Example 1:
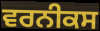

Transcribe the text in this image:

ਵਰਨੀਕਸ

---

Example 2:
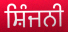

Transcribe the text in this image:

ਸ਼ਿੰਜਨੀ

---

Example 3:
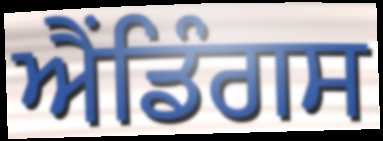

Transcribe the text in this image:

ਐਂਡਿੰਗਸ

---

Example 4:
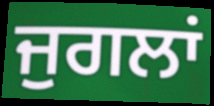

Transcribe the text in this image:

ਜੁਗਲਾਂ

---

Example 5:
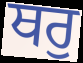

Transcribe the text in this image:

ਥਰੁ